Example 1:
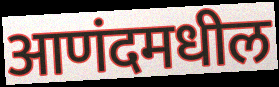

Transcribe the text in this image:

आणंदमधील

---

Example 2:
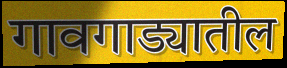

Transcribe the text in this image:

गावगाड्यातील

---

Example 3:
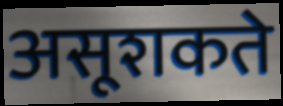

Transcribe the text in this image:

असूशकते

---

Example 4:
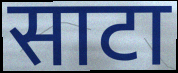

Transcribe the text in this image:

साटा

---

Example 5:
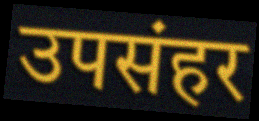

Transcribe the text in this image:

उपसंहर